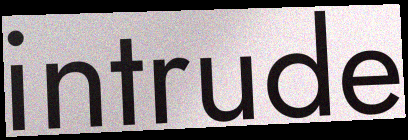
intrude